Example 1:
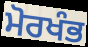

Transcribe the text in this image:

ਮੋਰਖੰਭ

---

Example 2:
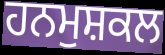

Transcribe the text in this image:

ਹਨਮੁਸ਼ਕਲ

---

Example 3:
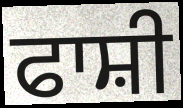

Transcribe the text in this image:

ਫਾਸ਼ੀ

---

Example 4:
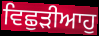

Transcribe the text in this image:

ਵਿਛੁੜੀਆਹੁ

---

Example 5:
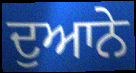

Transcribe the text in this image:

ਦੁਆਨੇ